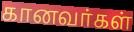
கானவர்கள்